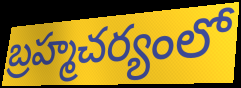
బ్రహ్మచర్యంలో